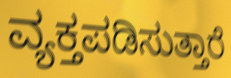
ವ್ಯಕ್ತಪಡಿಸುತ್ತಾರೆ